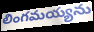
లింగమయ్యను